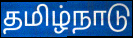
தமிழ்நாடு